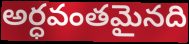
అర్ధవంతమైనది